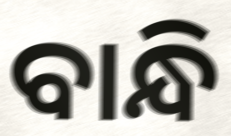
ବାନ୍ଧି